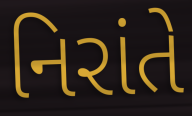
નિરાંતે